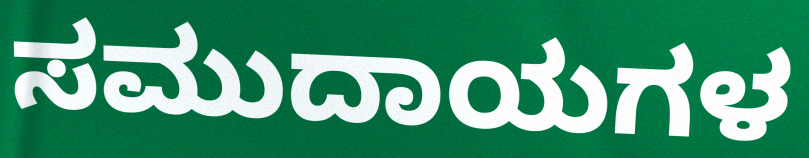
ಸಮುದಾಯಗಳ